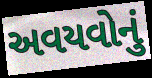
અવયવોનું